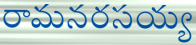
రామనరసయ్య